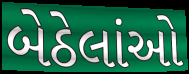
બેઠેલાંઓ